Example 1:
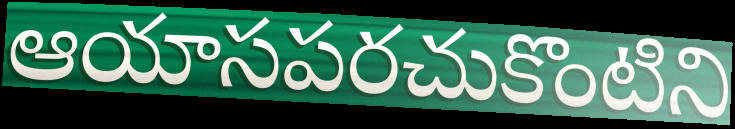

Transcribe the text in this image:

ఆయాసపరచుకొంటిని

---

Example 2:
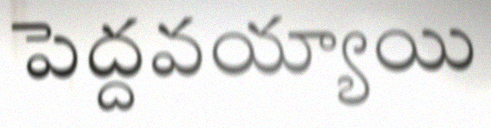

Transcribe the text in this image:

పెద్దవయ్యాయి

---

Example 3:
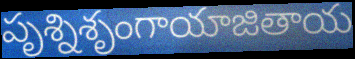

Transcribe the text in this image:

పృశ్నిశృంగాయాజితాయ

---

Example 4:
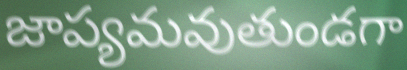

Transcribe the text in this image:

జాప్యమవుతుండగా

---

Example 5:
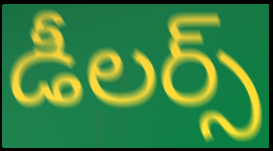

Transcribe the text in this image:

డీలర్స్